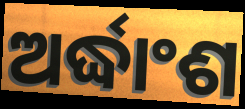
ଅର୍ଦ୍ଧାଂଶ